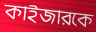
কাইজারকে